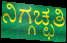
ನಿಗ್ಗಚ್ಛತಿ